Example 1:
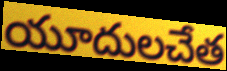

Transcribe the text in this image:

యూదులచేత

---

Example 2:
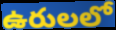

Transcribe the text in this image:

ఉరులలో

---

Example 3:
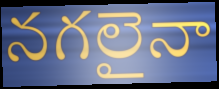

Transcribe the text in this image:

నగలైనా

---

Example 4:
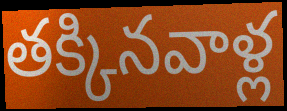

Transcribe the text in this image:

తక్కినవాళ్ల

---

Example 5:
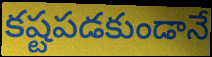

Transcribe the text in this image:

కష్టపడకుండానే